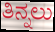
ತಿನ್ನಲು